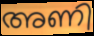
അണി